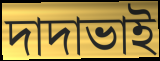
দাদাভাই